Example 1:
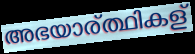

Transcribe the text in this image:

അഭയാര്ത്ഥികള്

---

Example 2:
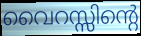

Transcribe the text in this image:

വൈറസ്സിന്റെ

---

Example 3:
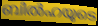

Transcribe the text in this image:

ബിൽഹയുടെ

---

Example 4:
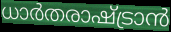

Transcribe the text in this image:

ധാർതരാഷ്ട്രാൻ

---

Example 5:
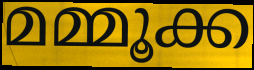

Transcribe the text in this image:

മമ്മൂക്ക